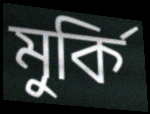
মুর্কি